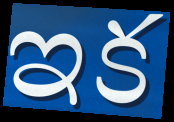
ఇక